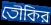
তৌকির